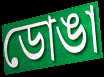
ডোঙা